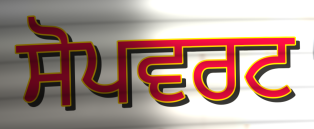
ਸੋਪਵਰਟ